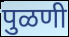
पुळणी